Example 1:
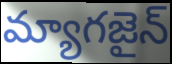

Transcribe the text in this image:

మ్యాగజైన్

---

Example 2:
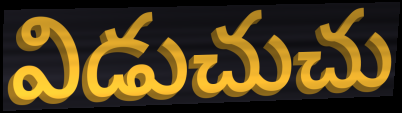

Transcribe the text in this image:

విడుచుచు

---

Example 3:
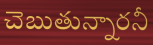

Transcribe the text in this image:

చెబుతున్నారనీ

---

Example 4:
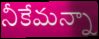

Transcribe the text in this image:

నీకేమన్నా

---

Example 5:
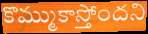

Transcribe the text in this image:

కొమ్ముకాస్తోందని